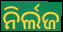
ନିର୍ଲଜ